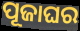
ପୂଜାଘର